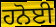
ਹਨੋਈ